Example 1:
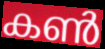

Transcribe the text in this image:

കൺ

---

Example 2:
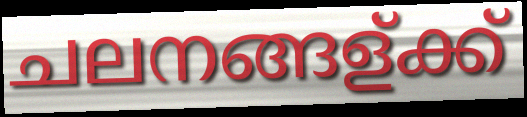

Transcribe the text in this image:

ചലനങ്ങള്ക്ക്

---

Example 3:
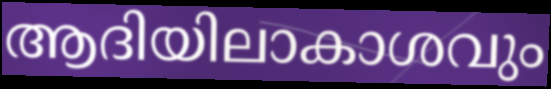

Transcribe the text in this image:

ആദിയിലാകാശവും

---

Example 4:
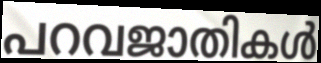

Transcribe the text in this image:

പറവജാതികൾ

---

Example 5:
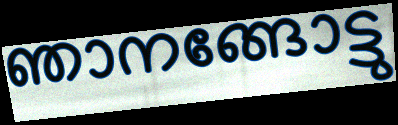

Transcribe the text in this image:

ഞാനങ്ങോട്ടു